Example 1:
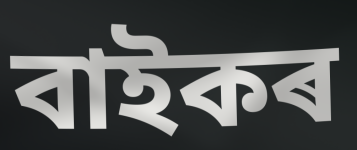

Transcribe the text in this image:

বাইকৰ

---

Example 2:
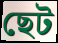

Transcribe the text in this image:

ছেট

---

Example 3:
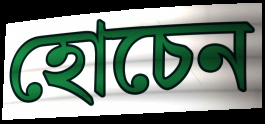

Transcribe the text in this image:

হোচেন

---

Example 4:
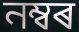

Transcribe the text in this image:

নম্বৰ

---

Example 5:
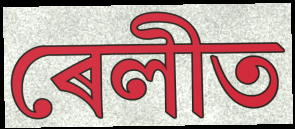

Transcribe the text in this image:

ৰেলীত